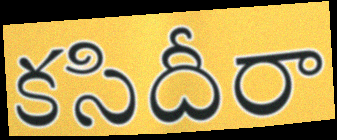
కసిదీరా